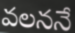
వలననే